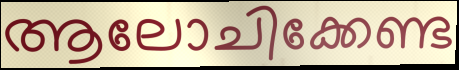
ആലോചിക്കേണ്ട